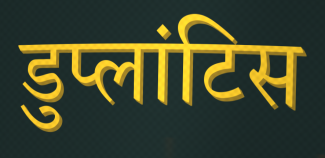
डुप्लांटिस